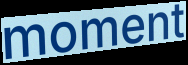
moment